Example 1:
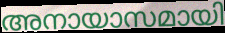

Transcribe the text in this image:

അനായാസമായി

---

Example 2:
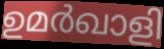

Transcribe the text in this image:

ഉമർഖാളി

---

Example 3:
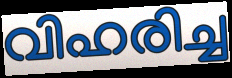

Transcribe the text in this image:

വിഹരിച്ച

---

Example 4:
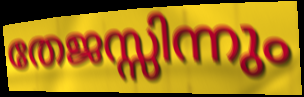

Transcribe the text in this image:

തേജസ്സിന്നും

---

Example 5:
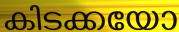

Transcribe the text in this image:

കിടക്കയോ